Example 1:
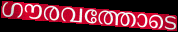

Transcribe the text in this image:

ഗൗരവത്തോടെ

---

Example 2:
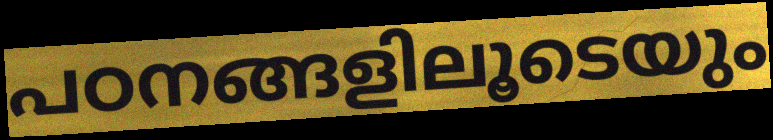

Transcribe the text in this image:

പഠനങ്ങളിലൂടെയും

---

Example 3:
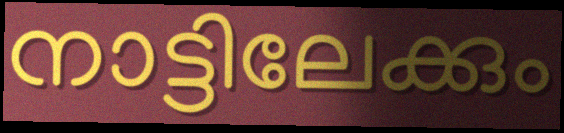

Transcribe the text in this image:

നാട്ടിലേക്കും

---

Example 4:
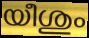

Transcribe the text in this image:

യീശും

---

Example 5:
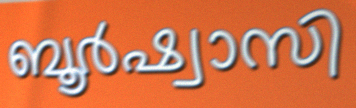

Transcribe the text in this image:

ബൂർഷ്വാസി